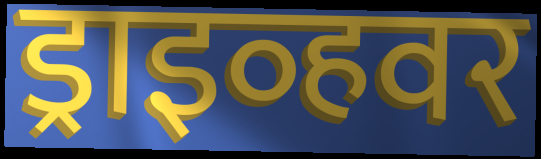
ड्राइव्हवर